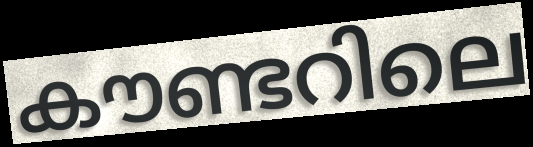
കൗണ്ടറിലെ